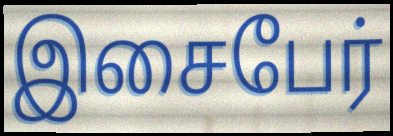
இசைபேர்